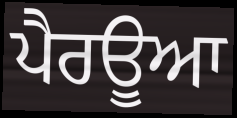
ਪੈਰਊਆ